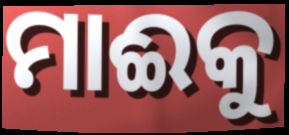
ମାଈକୁ